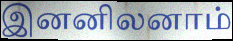
இனனிலனாம்